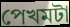
পেখমটা